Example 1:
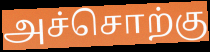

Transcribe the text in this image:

அச்சொற்கு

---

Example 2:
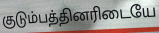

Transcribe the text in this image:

குடும்பத்தினரிடையே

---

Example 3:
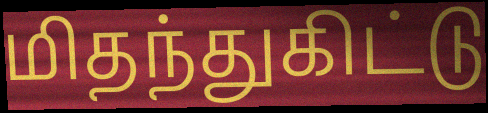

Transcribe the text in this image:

மிதந்துகிட்டு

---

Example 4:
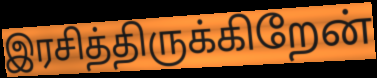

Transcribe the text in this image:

இரசித்திருக்கிறேன்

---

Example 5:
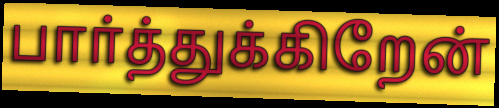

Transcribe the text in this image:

பார்த்துக்கிறேன்